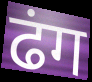
ढंग